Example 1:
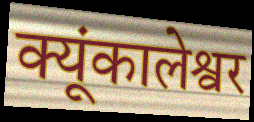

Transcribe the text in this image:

क्यूंकालेश्वर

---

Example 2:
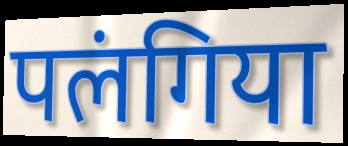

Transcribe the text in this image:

पलंगिया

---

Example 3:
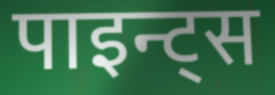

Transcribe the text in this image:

पाइन्ट्स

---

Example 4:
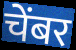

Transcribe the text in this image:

चेंबर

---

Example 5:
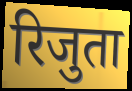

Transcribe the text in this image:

रिजुता